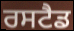
ਰਸਟੈਡ